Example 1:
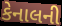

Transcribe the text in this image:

કેનાલની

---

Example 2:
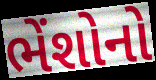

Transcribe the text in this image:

ભેંશોનો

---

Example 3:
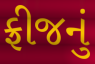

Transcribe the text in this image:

ફ્રીજનું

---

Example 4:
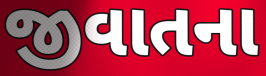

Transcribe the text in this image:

જીવાતના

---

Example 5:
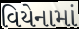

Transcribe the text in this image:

વિયેનામાં